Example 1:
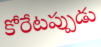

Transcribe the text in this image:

కోరేటప్పుడు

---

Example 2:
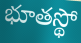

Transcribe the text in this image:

భూతస్థో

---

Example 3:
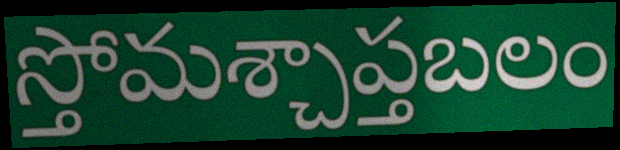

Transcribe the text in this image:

స్తోమశ్చాప్తబలం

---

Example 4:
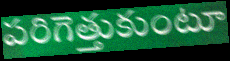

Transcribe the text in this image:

పరిగెత్తుకుంటూ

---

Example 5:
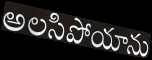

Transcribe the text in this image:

అలసిపోయాను